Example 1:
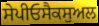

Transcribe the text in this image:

ਸੇਪੀਓਸੈਕਸੁਅਲ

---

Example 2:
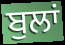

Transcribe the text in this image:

ਬੁਲਾਂ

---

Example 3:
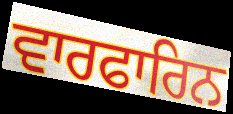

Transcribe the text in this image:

ਵਾਰਫਾਰਿਨ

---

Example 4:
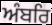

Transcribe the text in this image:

ਅੰਬਰਿ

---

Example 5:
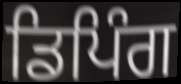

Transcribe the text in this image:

ਡਿਪਿੰਗ